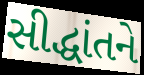
સીદ્ધાંતને